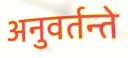
अनुवर्तन्ते